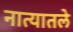
नात्यातले